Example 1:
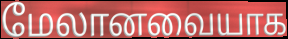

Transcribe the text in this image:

மேலானவையாக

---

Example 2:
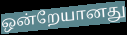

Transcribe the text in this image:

ஒன்றேயானது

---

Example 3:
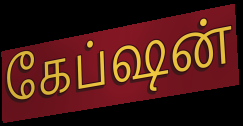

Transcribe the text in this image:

கேப்ஷன்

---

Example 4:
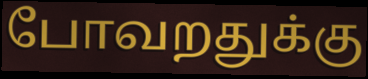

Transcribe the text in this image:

போவறதுக்கு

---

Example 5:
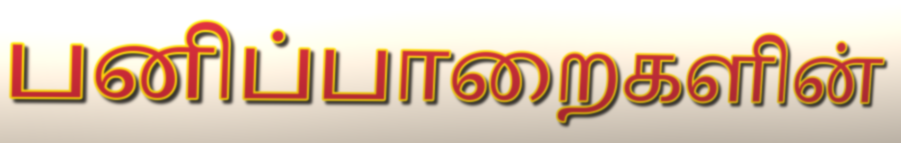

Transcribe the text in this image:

பனிப்பாறைகளின்